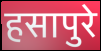
हसापुरे